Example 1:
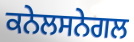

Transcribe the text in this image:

ਕਨੇਲਸਨੇਗਲ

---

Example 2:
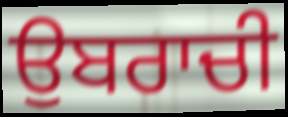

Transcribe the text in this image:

ਉਬਰਾਚੀ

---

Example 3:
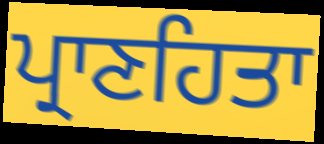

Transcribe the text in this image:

ਪ੍ਰਾਣਹਿਤਾ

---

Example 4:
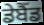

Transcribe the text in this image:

ਡੇਬੈੱਡ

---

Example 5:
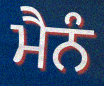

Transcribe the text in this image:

ਮੈਨੰ